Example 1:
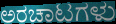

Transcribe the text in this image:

ಅರಚಾಟಗಳು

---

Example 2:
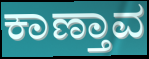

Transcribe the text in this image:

ಕಾಣ್ತಾವ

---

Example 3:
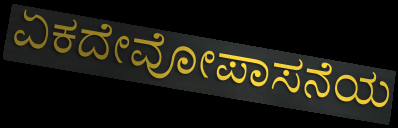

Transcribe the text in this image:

ಏಕದೇವೋಪಾಸನೆಯ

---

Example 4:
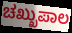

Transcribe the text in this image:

ಚಖ್ಖುಪಾಲ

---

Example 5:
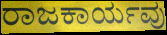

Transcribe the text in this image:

ರಾಜಕಾರ್ಯವು